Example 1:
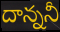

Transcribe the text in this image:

దాన్ననీ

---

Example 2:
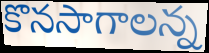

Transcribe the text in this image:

కొనసాగాలన్న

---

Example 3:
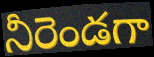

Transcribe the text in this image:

నీరెండగా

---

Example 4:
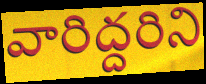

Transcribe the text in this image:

వారిద్దరిని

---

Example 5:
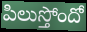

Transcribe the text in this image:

పిలుస్తోందో